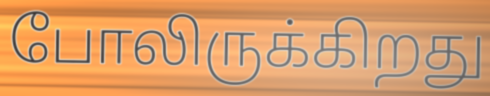
போலிருக்கிறது